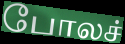
போலச்